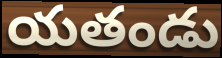
యతండు